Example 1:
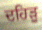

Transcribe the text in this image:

ਦਹਿੜੂ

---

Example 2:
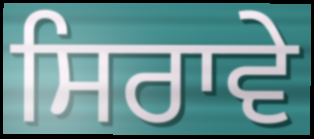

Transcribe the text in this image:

ਸਿਰਾਵੇ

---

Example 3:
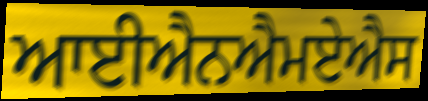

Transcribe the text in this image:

ਆਈਐਨਐਮਏਐਸ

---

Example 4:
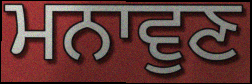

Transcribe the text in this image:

ਮਨਾਵੁਣ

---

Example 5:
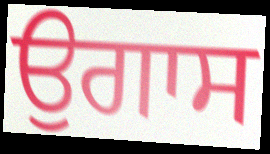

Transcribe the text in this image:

ਉਗਾਸ